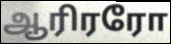
ஆரிரரோ